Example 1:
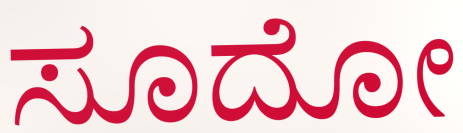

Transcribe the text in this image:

ಸೂದೋ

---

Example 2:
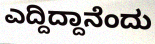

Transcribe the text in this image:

ಎದ್ದಿದ್ದಾನೆಂದು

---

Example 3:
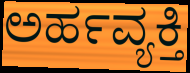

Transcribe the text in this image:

ಅರ್ಹವ್ಯಕ್ತಿ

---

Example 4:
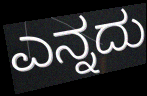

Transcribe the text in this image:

ಎನ್ನದು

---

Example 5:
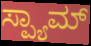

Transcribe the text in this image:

ಸ್ಪ್ಯಾಮ್